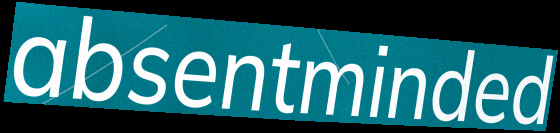
absentminded